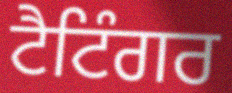
ਟੈਟਿੰਗਰ